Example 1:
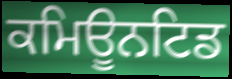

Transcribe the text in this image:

ਕਮਿਊਨਟਿਡ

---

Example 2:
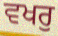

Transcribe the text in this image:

ਵਖਰੁ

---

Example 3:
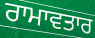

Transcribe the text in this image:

ਰਾਮਾਵਤਾਰ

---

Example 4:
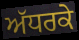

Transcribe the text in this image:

ਅੱਧਰਕੇ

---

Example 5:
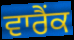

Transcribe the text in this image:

ਵਾਰੈਂਕ